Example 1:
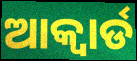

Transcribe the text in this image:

ଆକ୍ୱାର୍ଡ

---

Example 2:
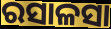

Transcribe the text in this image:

ରସାଳସା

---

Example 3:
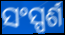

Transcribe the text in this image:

ସଂସ୍ପର୍ଶ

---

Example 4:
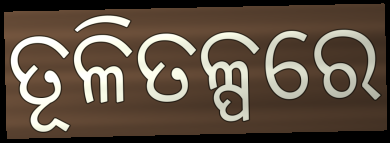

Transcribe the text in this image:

ତୂଳିତଳ୍ପରେ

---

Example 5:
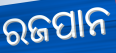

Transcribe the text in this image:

ରଜପାନ